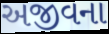
અજીવના